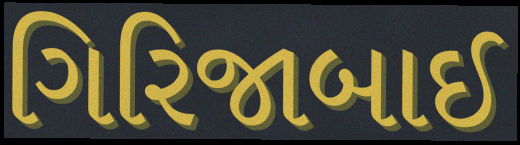
ગિરિજાબાઈ